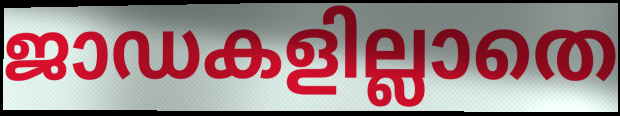
ജാഡകളില്ലാതെ